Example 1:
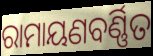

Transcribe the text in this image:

ରାମାୟଣବର୍ଣ୍ଣିତ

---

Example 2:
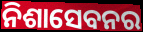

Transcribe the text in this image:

ନିଶାସେବନର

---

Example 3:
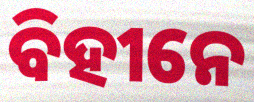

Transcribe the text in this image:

ବିହୀନେ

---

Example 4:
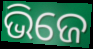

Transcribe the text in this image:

ଭିଜେ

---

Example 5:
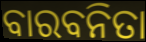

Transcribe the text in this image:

ବାରବନିତା